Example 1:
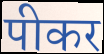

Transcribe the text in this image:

पीकर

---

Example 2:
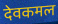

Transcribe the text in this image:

देवकमल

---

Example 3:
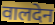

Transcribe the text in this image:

वालदेन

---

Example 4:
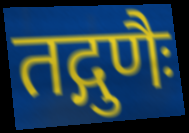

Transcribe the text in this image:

तद्गुणैः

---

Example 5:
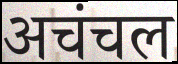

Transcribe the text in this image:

अचंचल